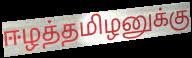
ஈழத்தமிழனுக்கு